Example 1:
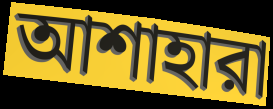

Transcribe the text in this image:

আশাহারা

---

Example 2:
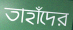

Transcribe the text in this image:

তাহাঁদের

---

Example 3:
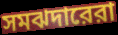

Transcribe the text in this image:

সমঝদারেরা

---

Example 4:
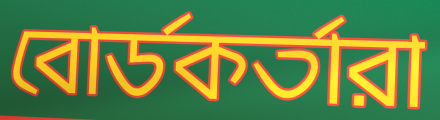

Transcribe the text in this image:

বোর্ডকর্তারা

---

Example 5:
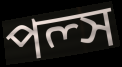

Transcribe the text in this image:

পল্স